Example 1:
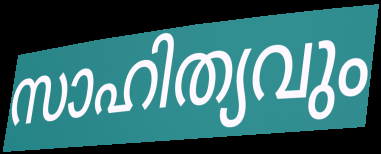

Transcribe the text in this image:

സാഹിത്യവും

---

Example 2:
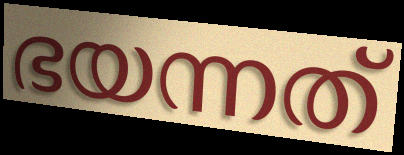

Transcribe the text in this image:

ഭയന്നത്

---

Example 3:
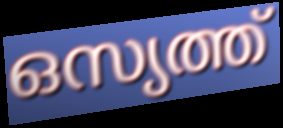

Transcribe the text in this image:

ഒസ്യത്ത്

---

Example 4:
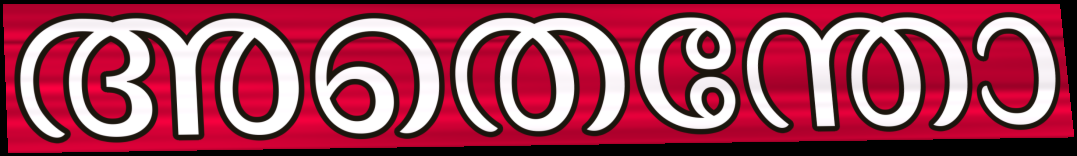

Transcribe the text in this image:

അതെന്തോ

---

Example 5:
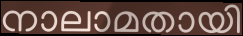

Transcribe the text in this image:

നാലാമതായി